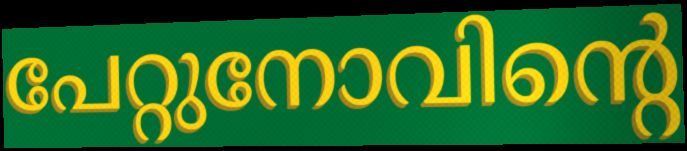
പേറ്റുനോവിന്റെ